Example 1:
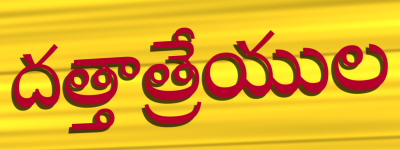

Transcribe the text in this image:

దత్తాత్రేయుల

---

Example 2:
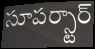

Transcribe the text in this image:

సూపర్స్టార్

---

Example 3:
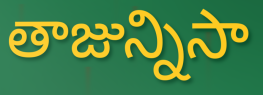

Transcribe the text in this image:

తాజున్నిసా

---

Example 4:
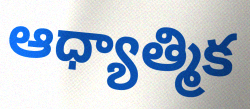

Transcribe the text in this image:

ఆధ్యాత్మిక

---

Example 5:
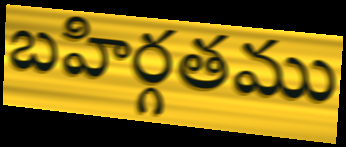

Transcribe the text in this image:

బహిర్గతము